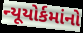
ન્યૂયોર્કમાંનો